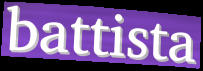
battista